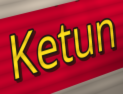
Ketun